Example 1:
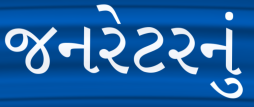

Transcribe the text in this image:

જનરેટરનું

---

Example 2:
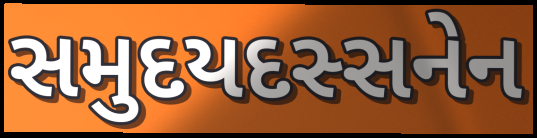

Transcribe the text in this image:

સમુદયદસ્સનેન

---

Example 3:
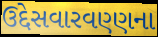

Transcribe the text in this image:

ઉદ્દેસવારવણ્ણના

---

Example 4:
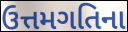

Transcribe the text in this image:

ઉત્તમગતિના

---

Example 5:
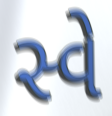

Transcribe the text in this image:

સ્વે